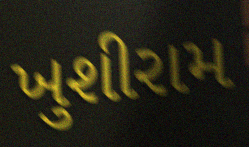
ખુશીરામ